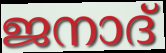
ജനാദ്